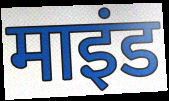
माइंड